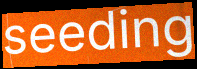
seeding